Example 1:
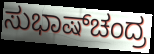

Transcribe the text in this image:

ಸುಭಾಷ್‌ಚಂದ್ರ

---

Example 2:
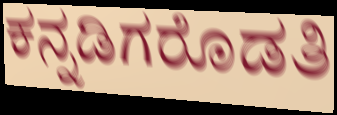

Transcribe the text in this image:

ಕನ್ನಡಿಗರೊಡತಿ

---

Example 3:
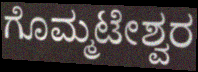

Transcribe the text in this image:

ಗೊಮ್ಮಟೇಶ್ವರ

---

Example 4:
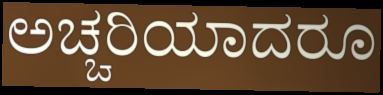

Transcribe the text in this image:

ಅಚ್ಚರಿಯಾದರೂ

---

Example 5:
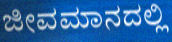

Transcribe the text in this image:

ಜೀವಮಾನದಲ್ಲಿ